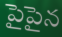
పైపైన